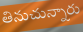
తినుచున్నారు